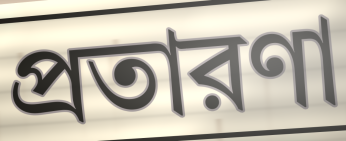
প্রতারণা